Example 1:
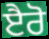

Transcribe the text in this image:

ੲੈਰੋ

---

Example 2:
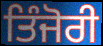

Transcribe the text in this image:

ਤਿੰਜੋਰੀ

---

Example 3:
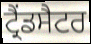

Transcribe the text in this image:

ਟ੍ਰੈਂਡਸੈਟਰ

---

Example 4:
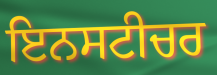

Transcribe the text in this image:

ਇਨਸਟੀਚਰ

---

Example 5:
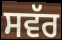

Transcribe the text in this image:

ਸਵੱਰ